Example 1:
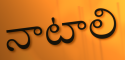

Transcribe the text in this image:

నాటాలి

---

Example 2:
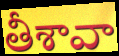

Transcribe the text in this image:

తీశావా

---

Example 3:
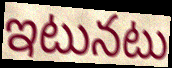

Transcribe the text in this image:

ఇటునటు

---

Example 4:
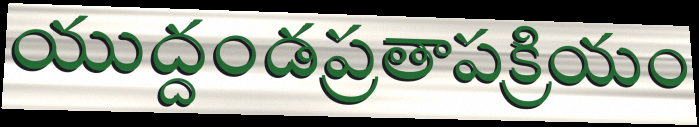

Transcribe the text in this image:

యుద్దండప్రతాపక్రియం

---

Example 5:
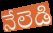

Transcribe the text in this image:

నేలెడి